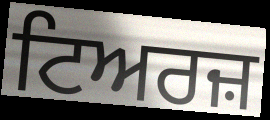
ਟਿਅਰਜ਼